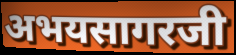
अभयसागरजी